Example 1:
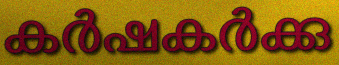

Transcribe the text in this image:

കർഷകർക്കു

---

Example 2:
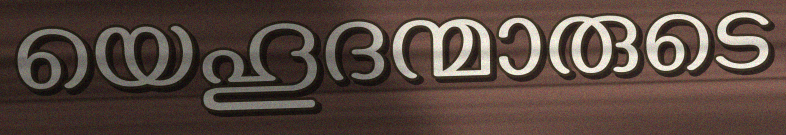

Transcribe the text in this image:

യെഹൂദന്മാരുടെ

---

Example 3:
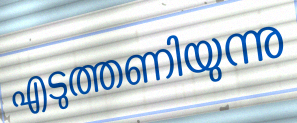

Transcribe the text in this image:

എടുത്തണിയുന്നു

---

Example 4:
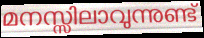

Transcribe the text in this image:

മനസ്സിലാവുന്നുണ്ട്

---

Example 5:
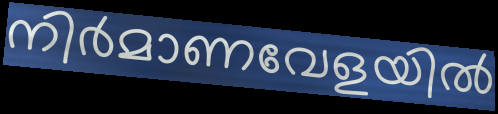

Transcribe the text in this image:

നിർമാണവേളയിൽ